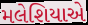
મલેશિયાએ